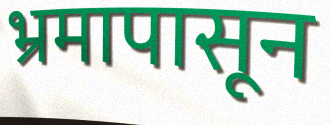
भ्रमापासून